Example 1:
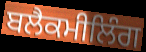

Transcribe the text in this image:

ਬਲੈਕਮੀਲਿੰਗ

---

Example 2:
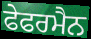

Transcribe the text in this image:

ਫੇਫਰਮੈਨ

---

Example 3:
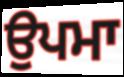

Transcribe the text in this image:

ਉਪਮਾ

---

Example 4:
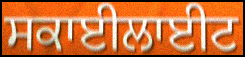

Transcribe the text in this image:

ਸਕਾਈਲਾਈਟ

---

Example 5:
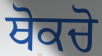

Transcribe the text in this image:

ਥੋਕਚੋ